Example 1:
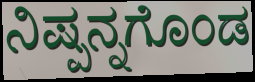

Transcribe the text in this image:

ನಿಷ್ಪನ್ನಗೊಂಡ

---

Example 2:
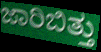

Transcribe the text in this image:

ಜಾರಿಬಿತ್ತು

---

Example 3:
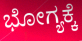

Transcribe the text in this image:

ಭೋಗ್ಯಕ್ಕೆ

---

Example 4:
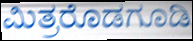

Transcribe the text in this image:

ಮಿತ್ರರೊಡಗೂಡಿ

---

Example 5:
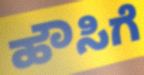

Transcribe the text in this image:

ಹೌಸಿಗೆ